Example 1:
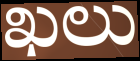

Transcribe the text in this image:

ఖలు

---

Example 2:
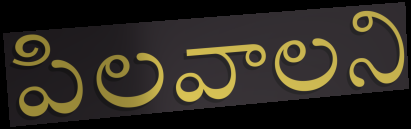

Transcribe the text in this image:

పిలవాలని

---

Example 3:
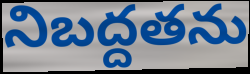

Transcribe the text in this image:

నిబద్దతను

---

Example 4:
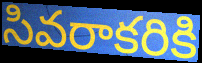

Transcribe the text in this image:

సివరాకరికి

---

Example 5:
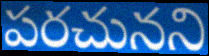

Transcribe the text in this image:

పరచునని